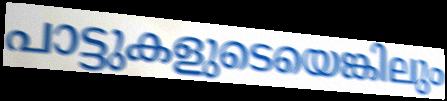
പാട്ടുകളുടെയെങ്കിലും